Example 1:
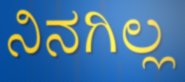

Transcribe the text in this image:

ನಿನಗಿಲ್ಲ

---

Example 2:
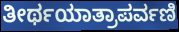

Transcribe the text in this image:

ತೀರ್ಥಯಾತ್ರಾಪರ್ವಣಿ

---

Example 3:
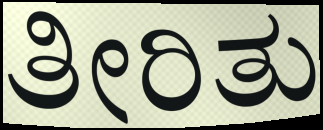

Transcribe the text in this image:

ತೀರಿತು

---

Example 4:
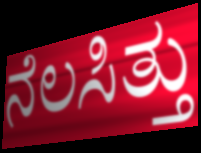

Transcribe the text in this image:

ನೆಲಸಿತ್ತು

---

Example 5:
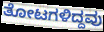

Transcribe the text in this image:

ತೋಟಗಳಿದ್ದವು